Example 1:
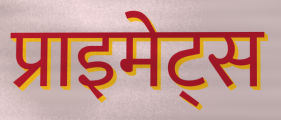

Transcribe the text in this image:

प्राइमेट्स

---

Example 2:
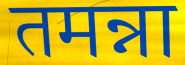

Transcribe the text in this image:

तमन्ना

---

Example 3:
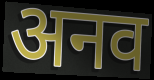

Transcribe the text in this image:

अनव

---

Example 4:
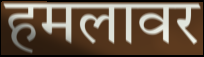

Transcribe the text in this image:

हमलावर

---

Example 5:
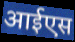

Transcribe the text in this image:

आईएस